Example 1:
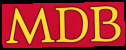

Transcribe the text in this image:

MDB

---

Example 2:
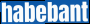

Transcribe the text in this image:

habebant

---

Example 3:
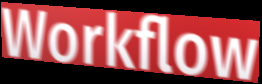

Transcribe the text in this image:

Workflow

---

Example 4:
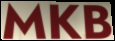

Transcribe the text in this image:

MKB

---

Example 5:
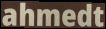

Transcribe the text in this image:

ahmedt